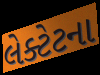
લેક્ટેટના